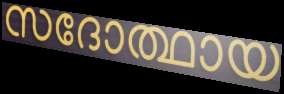
സദോത്ഥായ